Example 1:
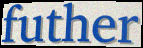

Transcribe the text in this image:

futher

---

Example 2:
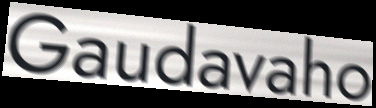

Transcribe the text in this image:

Gaudavaho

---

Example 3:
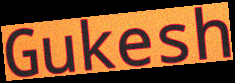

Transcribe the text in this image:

Gukesh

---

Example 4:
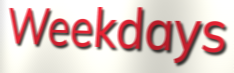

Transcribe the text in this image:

Weekdays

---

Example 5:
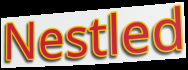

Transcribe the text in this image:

Nestled